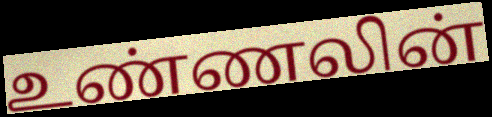
உண்ணலின்